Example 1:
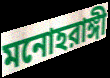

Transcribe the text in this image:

মনোহরাঙ্গী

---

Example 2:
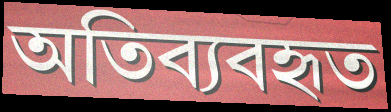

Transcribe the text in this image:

অতিব্যবহৃত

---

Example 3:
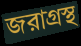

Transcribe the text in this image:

জরাগ্রস্থ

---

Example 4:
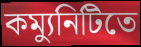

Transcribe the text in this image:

কম্যুনিটিতে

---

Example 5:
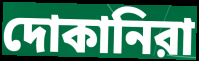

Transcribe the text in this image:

দোকানিরা